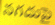
నగదుపై